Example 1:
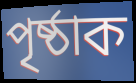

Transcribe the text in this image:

পৃষ্ঠাক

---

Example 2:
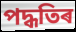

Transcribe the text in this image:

পদ্ধতিৰ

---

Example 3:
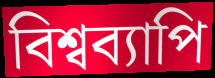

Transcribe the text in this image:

বিশ্বব্যাপি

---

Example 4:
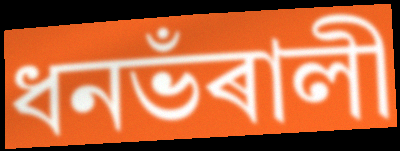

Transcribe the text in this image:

ধনভঁৰালী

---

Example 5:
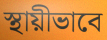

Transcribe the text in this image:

স্থায়ীভাবে